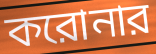
করোনার